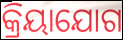
କ୍ରିୟାଯୋଗ